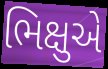
ભિક્ષુએ